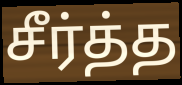
சீர்த்த